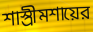
শাস্ত্রীমশায়ের